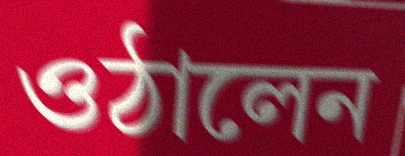
ওঠালেন